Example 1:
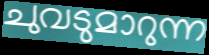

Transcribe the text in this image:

ചുവടുമാറുന്ന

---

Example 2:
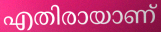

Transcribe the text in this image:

എതിരായാണ്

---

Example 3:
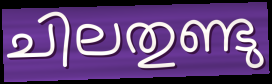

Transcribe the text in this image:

ചിലതുണ്ടു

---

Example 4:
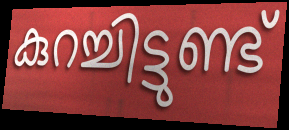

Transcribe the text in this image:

കുറച്ചിട്ടുണ്ട്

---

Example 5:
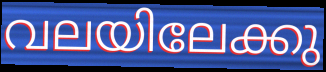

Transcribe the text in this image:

വലയിലേക്കു